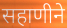
सहाणीने